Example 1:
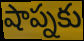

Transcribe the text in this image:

షాప్నకు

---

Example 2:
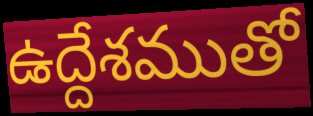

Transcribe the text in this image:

ఉద్దేశముతో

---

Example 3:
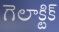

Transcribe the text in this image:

గెలాక్టిక్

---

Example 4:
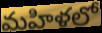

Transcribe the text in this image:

మహిళలో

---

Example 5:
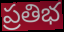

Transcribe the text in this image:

ప్రతిభ